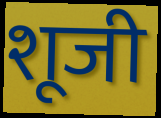
शूजी